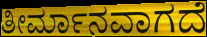
ತೀರ್ಮಾನವಾಗದೆ